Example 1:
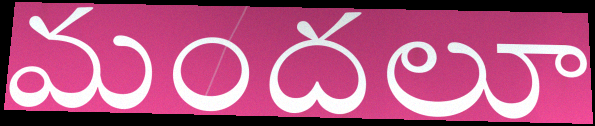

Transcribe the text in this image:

మందలూ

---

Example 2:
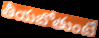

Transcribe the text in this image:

తీయబోతుంటే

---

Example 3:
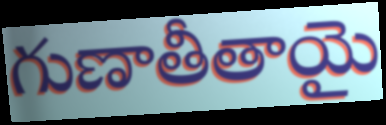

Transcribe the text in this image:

గుణాతీతాయై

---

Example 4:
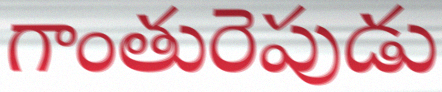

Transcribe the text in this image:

గాంతురెపుడు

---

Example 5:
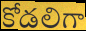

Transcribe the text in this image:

కోడలిగా